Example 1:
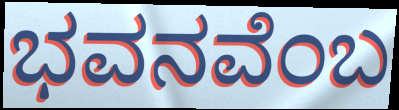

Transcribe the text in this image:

ಭವನವೆಂಬ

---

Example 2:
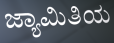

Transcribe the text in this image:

ಜ್ಯಾಮಿತಿಯ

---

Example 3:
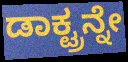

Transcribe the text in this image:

ಡಾಕ್ಟ್ರನ್ನೇ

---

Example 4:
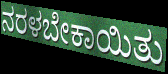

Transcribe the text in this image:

ನರಳಬೇಕಾಯಿತು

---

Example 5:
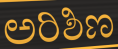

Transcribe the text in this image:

ಅರಿಶಿಣ